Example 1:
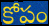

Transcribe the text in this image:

కోపం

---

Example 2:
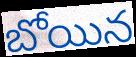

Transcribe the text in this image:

బోయిన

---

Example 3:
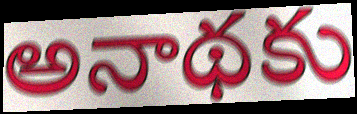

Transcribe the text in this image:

అనాథకు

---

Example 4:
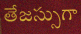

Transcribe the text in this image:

తేజస్సుగా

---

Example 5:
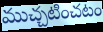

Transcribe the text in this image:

ముచ్చటించటం